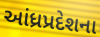
આંધ્રપ્રદેશના